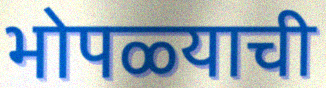
भोपळ्याची